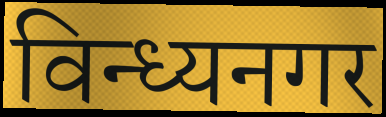
विन्ध्यनगर